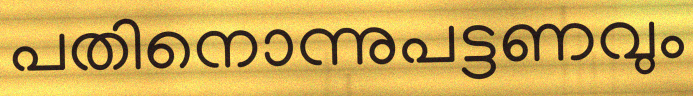
പതിനൊന്നുപട്ടണവും